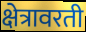
क्षेत्रावरती